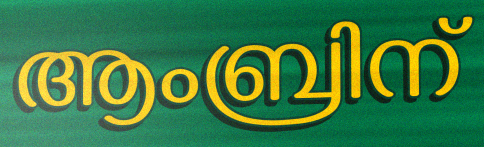
ആംബ്രിന്